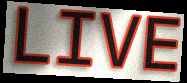
LIVE